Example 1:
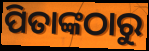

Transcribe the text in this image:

ପିତାଙ୍କଠାରୁ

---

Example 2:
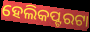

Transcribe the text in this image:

ହେଲିକପ୍ଟରଟା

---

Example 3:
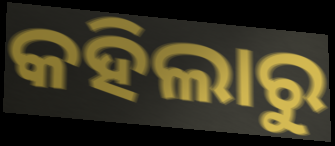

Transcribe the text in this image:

କହିଲାରୁ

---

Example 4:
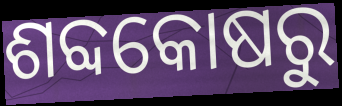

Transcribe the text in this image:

ଶବ୍ଦକୋଷରୁ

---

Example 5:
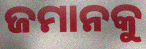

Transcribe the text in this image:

ଜମାନକୁ